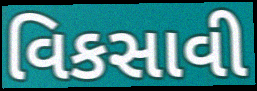
વિકસાવી